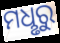
ମଧୢରୁ